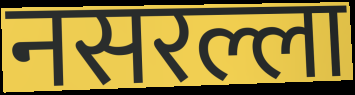
नसरल्ला